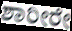
ಶಾರೀರೇ